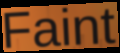
Faint